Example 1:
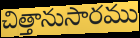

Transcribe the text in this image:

చిత్తానుసారము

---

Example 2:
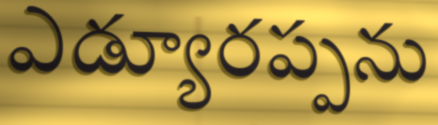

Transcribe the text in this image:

ఎడ్యూరప్పను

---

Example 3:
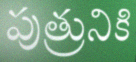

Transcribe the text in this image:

పుత్రునికి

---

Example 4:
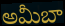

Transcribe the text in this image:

అమీబా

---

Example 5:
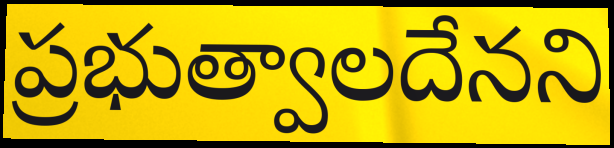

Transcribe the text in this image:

ప్రభుత్వాలదేనని